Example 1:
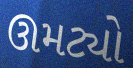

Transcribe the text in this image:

ઊમટ્યો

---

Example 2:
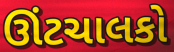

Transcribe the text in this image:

ઊંટચાલકો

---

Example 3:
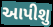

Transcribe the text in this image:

આપીશુ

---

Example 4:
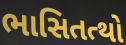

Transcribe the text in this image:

ભાસિતત્થો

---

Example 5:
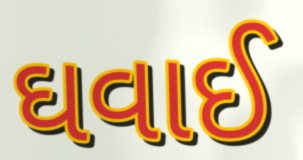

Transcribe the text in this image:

ઘવાઈ